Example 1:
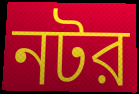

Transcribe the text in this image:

নটর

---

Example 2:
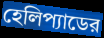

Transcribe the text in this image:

হেলিপ্যাডের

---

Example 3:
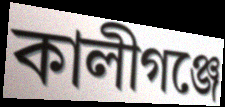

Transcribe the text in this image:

কালীগঞ্জে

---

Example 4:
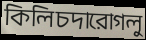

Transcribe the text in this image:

কিলিচদারোগলু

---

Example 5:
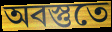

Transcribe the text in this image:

অবস্তুতে